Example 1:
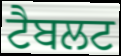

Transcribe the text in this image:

ਟੈਬਲਟ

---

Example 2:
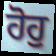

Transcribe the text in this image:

ਹੋਹੁ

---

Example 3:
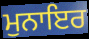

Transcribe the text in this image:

ਮੁਨਾਇਰ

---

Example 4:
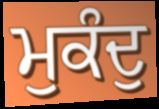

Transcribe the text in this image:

ਮੁਕੰਦੁ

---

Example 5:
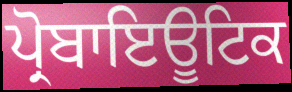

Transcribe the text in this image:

ਪ੍ਰੋਬਾਇਊਟਿਕ